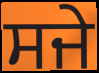
ਸਜੇ